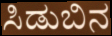
ಸಿಡುಬಿನ